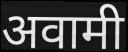
अवामी